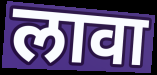
लावा